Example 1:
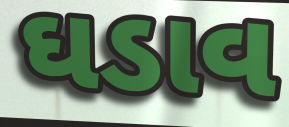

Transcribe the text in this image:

ઘડાવ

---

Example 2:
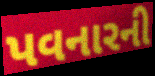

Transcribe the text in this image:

પવનારની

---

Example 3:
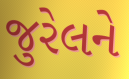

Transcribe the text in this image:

જુરેલને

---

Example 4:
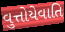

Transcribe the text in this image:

વુત્તોયેવાતિ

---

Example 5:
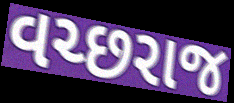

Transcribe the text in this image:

વચ્છરાજ